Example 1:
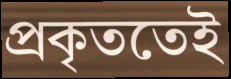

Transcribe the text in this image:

প্ৰকৃততেই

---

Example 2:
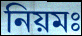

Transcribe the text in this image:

নিয়মঃ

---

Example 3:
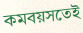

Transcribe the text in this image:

কমবয়সতেই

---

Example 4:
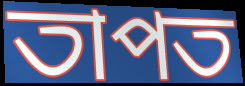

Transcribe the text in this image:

তাপত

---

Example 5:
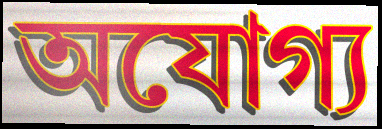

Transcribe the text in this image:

অযোগ্য